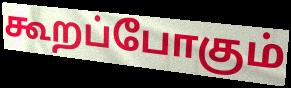
கூறப்போகும்